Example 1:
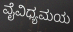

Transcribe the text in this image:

ವೈವಿಧ್ಯಮಯ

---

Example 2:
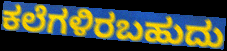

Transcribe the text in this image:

ಕಲೆಗಳಿರಬಹುದು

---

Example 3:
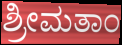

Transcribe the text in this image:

ಶ್ರೀಮತಾಂ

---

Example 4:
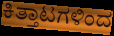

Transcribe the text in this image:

ಕಿತ್ತಾಟಗಳಿಂದ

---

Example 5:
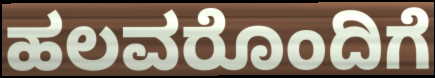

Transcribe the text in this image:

ಹಲವರೊಂದಿಗೆ